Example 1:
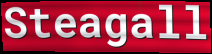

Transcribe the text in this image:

Steagall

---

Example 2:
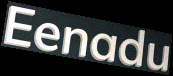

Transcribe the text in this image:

Eenadu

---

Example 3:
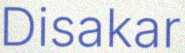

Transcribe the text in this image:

Disakar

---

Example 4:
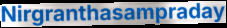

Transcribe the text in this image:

Nirgranthasampraday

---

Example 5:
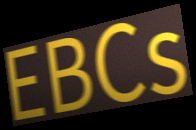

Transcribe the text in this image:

EBCs